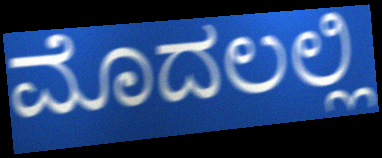
ಮೊದಲಲ್ಲಿ